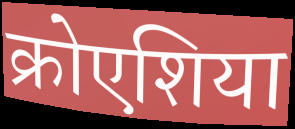
क्रोएशिया